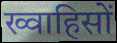
ख्वाहिसों